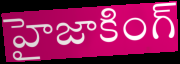
హైజాకింగ్